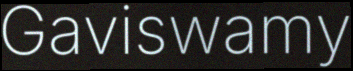
Gaviswamy